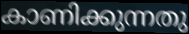
കാണിക്കുന്നതു